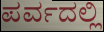
ಪರ್ವದಲ್ಲಿ